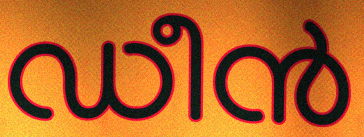
ഡീൻ